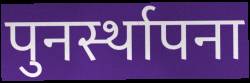
पुनर्स्थापना